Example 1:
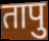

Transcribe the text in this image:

तापु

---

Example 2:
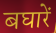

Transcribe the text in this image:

बघारें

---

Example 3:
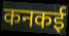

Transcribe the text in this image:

कनकई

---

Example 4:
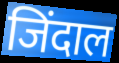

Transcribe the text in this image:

जिंदाल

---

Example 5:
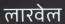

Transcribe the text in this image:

लारवेल